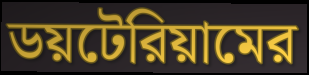
ডয়টেরিয়ামের